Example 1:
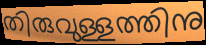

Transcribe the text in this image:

തിരുവുള്ളത്തിനു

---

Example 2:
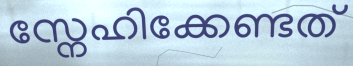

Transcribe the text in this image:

സ്നേഹിക്കേണ്ടത്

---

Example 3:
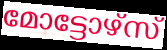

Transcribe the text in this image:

മോട്ടോഴ്സ്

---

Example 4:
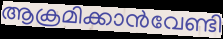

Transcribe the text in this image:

ആക്രമിക്കാൻവേണ്ടി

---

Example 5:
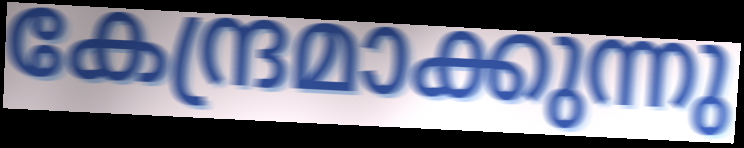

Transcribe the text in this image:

കേന്ദ്രമാക്കുന്നു